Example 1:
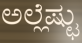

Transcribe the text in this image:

ಅಲ್ಲೆಷ್ಟು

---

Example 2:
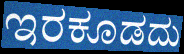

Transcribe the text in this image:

ಇರಕೂಡದು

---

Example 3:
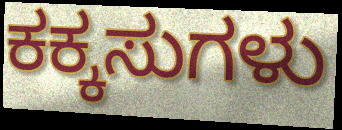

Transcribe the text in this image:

ಕಕ್ಕಸುಗಳು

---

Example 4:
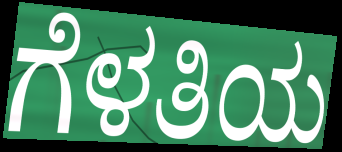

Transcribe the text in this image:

ಗೆಳತಿಯ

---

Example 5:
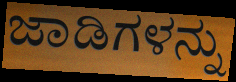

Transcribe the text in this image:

ಜಾಡಿಗಳನ್ನು